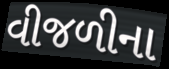
વીજળીના